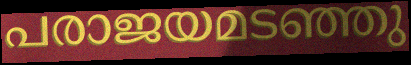
പരാജയമടഞ്ഞു